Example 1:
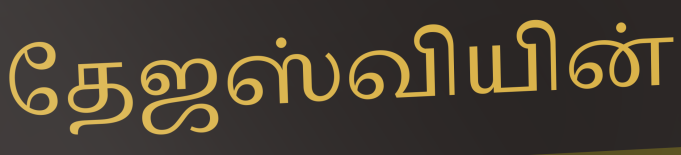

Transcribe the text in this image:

தேஜஸ்வியின்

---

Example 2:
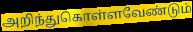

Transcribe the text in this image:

அறிந்துகொள்ளவேண்டும்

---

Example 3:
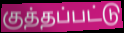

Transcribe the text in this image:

குத்தப்பட்டு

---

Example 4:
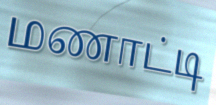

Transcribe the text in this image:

மணாட்டி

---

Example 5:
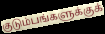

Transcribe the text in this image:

குடும்பங்களுக்குக்